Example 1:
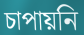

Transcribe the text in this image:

চাপায়নি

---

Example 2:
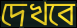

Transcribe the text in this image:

দেখবে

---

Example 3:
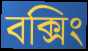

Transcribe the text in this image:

বক্সিং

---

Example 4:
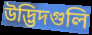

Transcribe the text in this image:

উদ্ভিদগুলি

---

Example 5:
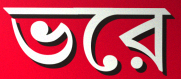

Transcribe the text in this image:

ভরে